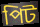
পিট